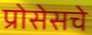
प्रोसेसचे